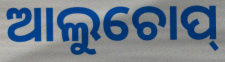
ଆଲୁଚୋପ୍